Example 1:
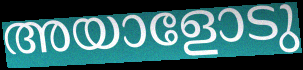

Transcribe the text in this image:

അയാളോടു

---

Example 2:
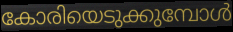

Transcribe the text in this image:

കോരിയെടുക്കുമ്പോൾ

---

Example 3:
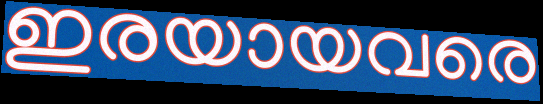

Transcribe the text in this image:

ഇരയായവരെ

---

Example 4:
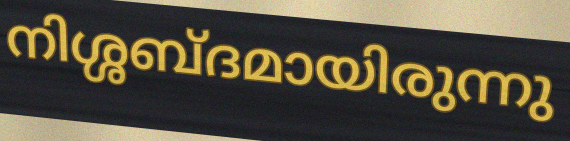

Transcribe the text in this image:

നിശ്ശബ്ദമായിരുന്നു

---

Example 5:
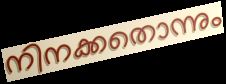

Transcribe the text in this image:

നിനക്കതൊന്നും